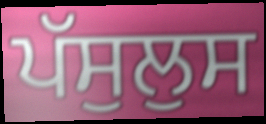
ਪੱਸੁਲੁਸ